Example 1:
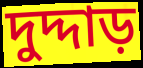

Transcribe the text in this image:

দুদ্দাড়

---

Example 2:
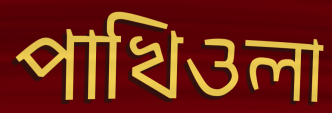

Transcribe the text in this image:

পাখিওলা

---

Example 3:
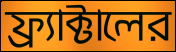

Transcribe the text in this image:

ফ্র্যাক্টালের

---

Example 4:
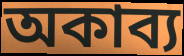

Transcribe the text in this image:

অকাব্য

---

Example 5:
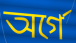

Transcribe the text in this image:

অর্গে